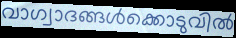
വാഗ്വാദങ്ങൾക്കൊടുവിൽ